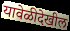
यावेळीदेखील